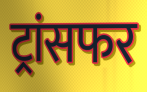
ट्रांसफर